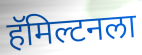
हॅमिल्टनला